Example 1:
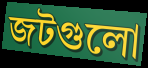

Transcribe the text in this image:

জটগুলো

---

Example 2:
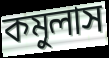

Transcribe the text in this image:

কমুলাস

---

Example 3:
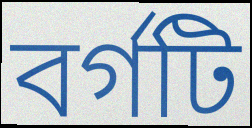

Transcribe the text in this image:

বর্গটি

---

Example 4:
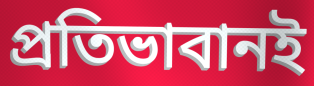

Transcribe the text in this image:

প্রতিভাবানই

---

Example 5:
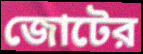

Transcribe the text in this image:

জোটের